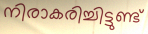
നിരാകരിച്ചിട്ടുണ്ട്